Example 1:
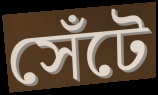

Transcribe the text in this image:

সেঁটে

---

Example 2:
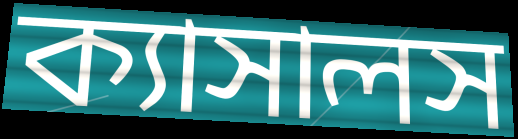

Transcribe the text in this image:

ক্যাসালস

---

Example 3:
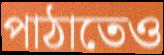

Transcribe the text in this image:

পাঠাতেও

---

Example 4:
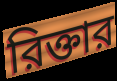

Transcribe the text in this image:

রিক্তার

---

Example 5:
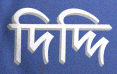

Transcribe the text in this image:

দিদ্দি